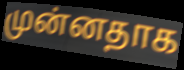
முன்னதாக